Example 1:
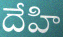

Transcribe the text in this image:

దేహి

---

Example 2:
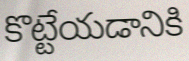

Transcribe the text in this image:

కొట్టేయడానికి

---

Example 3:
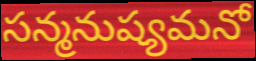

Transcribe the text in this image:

సన్మనుష్యమనో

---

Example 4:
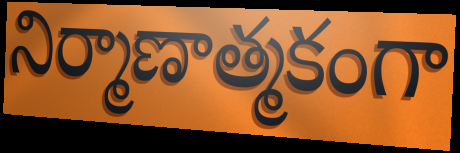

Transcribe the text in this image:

నిర్మాణాత్మకంగా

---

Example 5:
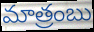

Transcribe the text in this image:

మాత్రంబు